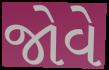
જોવે